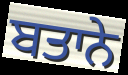
ਬਤਾਨੇ